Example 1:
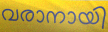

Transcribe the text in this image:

വരാനായി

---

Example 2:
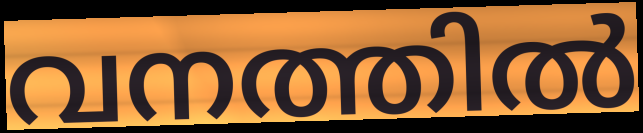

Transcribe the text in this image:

വനത്തിൽ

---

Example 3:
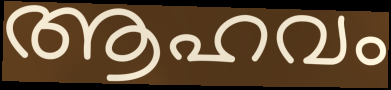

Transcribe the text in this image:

ആഹവം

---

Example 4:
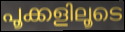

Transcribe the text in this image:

പൂക്കളിലൂടെ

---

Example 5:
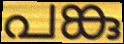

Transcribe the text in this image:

പങ്കു